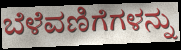
ಬೆಳೆವಣಿಗೆಗಳನ್ನು